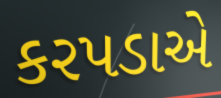
કરપડાએ